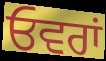
ਓਵਰਾਂ